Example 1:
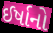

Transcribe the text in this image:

ઈર્ષાનો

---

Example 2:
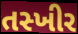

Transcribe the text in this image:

તસ્ખીર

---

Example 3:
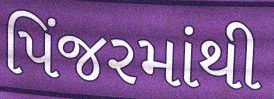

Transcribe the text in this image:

પિંજરમાંથી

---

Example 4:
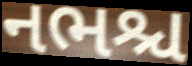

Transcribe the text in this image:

નભશ્ચ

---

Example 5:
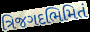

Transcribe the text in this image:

ત્રિજગદભિમિતં